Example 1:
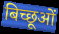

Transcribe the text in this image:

बिच्छूओं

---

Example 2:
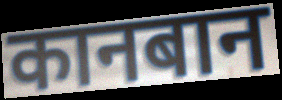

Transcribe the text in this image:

कानबान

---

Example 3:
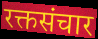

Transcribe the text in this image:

रक्तसंचार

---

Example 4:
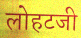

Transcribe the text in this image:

लोहटजी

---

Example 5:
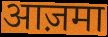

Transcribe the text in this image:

आज़मा